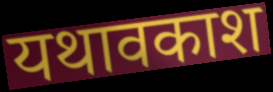
यथावकाश